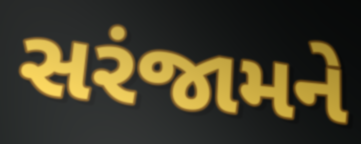
સરંજામને